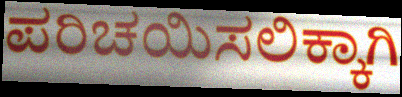
ಪರಿಚಯಿಸಲಿಕ್ಕಾಗಿ